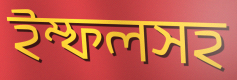
ইম্ফলসহ